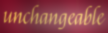
unchangeable